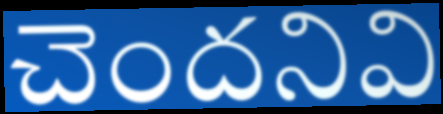
చెందనివి